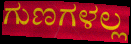
ಗುಣಗಳಲ್ಲ